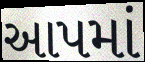
આપમાં